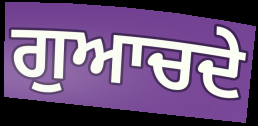
ਗੁਆਚਦੇ